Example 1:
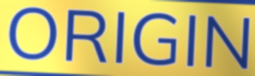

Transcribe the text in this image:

ORIGIN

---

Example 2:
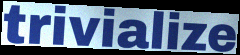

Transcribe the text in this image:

trivialize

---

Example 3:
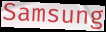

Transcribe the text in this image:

Samsung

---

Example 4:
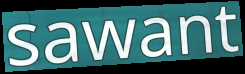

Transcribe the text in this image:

sawant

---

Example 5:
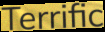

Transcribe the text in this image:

Terrific